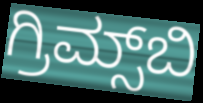
ಗ್ರಿಮ್ಸ್‌ಬಿ